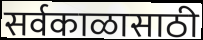
सर्वकाळासाठी